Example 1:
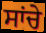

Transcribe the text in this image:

ਸਾਂਚੇ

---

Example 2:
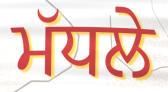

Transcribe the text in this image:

ਮੱਧਲੇ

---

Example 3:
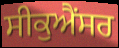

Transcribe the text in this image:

ਸੀਕੁਐਂਸਰ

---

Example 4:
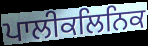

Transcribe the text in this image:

ਪਾਲੀਕਲਿਨਿਕ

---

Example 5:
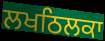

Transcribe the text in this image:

ਲਖਠਿਲਕਾ